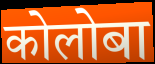
कोलोबा